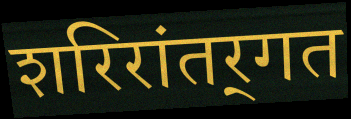
शरिरांतर्गत